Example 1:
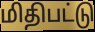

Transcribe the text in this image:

மிதிபட்டு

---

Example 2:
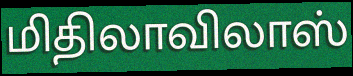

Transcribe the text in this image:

மிதிலாவிலாஸ்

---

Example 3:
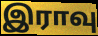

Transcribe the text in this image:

இராவு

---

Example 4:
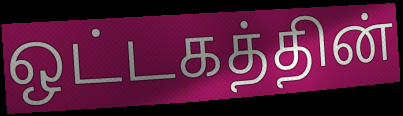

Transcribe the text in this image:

ஒட்டகத்தின்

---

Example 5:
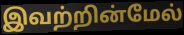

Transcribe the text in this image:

இவற்றின்மேல்